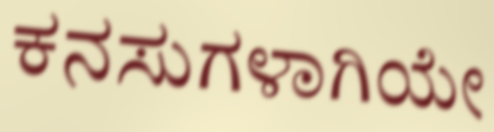
ಕನಸುಗಳಾಗಿಯೇ